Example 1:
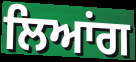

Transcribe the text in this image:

ਲਿਆਂਗ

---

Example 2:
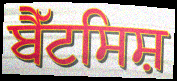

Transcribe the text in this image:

ਬੈੱਟਸਿਸ਼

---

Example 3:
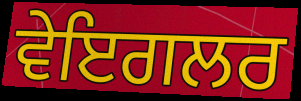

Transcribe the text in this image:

ਵੇਇਗਲਰ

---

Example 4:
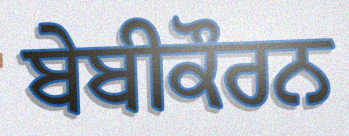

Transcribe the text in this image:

ਬੇਬੀਕੌਰਨ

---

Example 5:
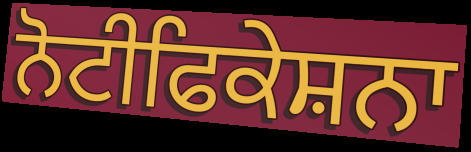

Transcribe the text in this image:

ਨੋਟੀਫਿਕੇਸ਼ਨਾ